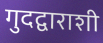
गुदद्वाराशी